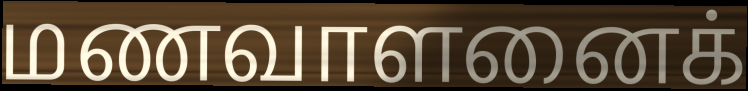
மணவாளனைக்